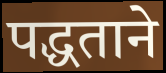
पद्धताने